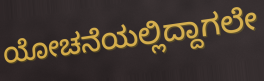
ಯೋಚನೆಯಲ್ಲಿದ್ದಾಗಲೇ